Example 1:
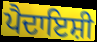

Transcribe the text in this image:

ਪੈਦਾਇਸ਼ੀ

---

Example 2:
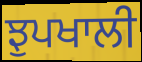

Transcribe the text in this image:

ਝੁਪਖਾਲੀ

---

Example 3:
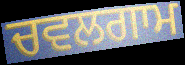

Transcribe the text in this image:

ਚਵਲਗਾਮ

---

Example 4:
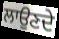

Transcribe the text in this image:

ਲਾਉਣਦੇ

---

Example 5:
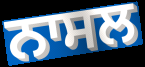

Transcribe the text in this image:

ਨਾਸਲ